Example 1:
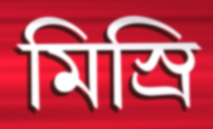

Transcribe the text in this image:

মিস্রি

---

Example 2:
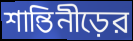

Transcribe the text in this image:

শান্তিনীড়ের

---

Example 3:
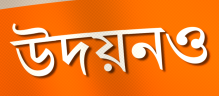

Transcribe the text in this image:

উদয়নও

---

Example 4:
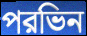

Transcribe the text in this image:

পরভিন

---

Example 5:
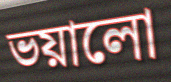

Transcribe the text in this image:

ভয়ালো